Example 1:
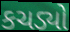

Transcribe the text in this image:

કચડ્યો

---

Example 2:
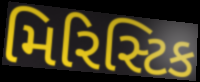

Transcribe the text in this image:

મિરિસ્ટિક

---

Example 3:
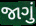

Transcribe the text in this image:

જાગું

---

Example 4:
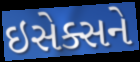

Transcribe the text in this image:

ઇસેક્સને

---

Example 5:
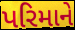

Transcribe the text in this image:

પરિમાને